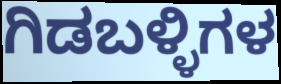
ಗಿಡಬಳ್ಳಿಗಳ